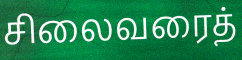
சிலைவரைத்